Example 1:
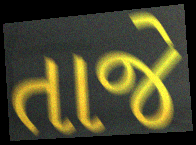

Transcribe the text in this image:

તાજે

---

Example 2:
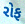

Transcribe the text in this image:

રોફ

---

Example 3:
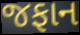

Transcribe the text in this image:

જફાન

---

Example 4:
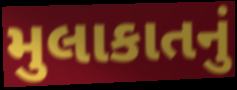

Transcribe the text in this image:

મુલાકાતનું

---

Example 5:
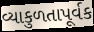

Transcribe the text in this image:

વ્યાકુળતાપૂર્વક